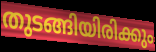
തുടങ്ങിയിരിക്കും